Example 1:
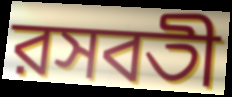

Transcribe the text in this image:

রসবতী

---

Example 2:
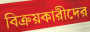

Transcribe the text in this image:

বিক্রয়কারীদের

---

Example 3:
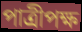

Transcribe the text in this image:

পাত্রীপক্ষ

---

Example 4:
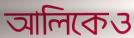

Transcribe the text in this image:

আলিকেও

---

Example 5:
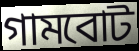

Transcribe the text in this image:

গামবোট